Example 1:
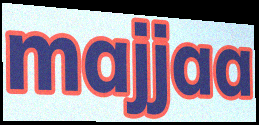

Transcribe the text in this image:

majjaa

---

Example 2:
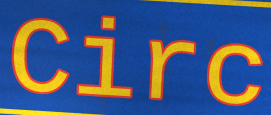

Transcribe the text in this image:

Circ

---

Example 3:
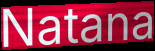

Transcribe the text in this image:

Natana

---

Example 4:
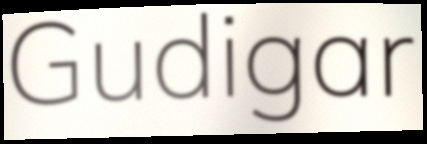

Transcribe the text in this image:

Gudigar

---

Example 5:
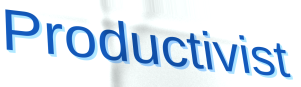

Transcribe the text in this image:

Productivist